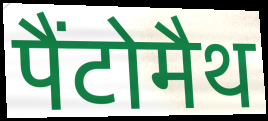
पैंटोमैथ